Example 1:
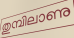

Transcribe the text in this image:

തുമ്പിലാണു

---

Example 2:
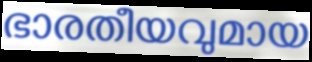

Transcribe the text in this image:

ഭാരതീയവുമായ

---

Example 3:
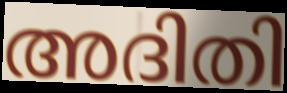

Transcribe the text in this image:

അദിതി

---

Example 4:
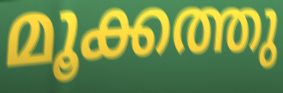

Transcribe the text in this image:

മൂക്കത്തു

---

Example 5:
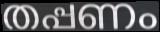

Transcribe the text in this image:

തപ്പണം